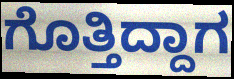
ಗೊತ್ತಿದ್ದಾಗ